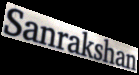
Sanrakshan